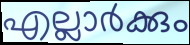
എല്ലാർക്കും